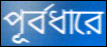
পূর্বধারে